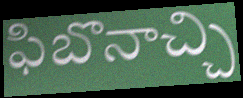
ఫిబొనాచ్చి